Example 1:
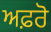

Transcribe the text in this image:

ਅਫ਼ਰੋ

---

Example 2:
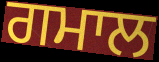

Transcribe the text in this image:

ਗਮਾਲ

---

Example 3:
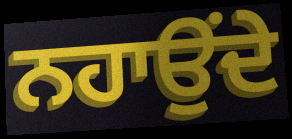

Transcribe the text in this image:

ਨਹਾਉਂਦੇ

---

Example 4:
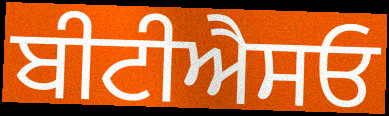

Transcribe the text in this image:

ਬੀਟੀਐਸਓ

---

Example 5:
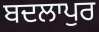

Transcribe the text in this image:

ਬਦਲਾਪੁਰ